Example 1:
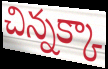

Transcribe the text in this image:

చిన్నక్కా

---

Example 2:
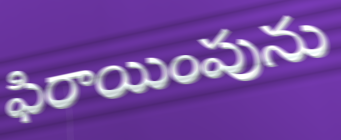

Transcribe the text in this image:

ఫిరాయింపును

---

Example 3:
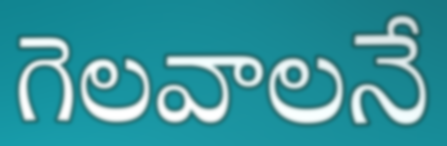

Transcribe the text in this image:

గెలవాలనే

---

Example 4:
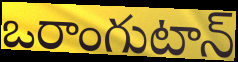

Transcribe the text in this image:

ఒరాంగుటాన్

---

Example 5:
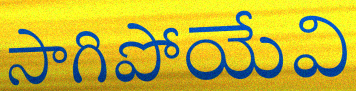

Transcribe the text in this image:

సాగిపోయేవి